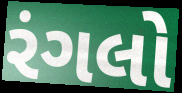
રંગલો